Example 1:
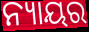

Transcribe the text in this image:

ନ୍ୟାୟର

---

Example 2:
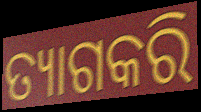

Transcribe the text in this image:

ତ୍ୟାଗକରି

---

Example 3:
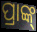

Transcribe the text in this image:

ପ୍ରାଙ୍କ୍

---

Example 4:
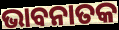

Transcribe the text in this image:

ଭାବନାତକ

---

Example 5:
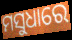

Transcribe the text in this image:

ମସୁଧାରେ